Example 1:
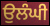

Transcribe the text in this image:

ਉਲੰਘੀ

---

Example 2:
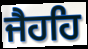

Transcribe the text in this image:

ਜੈਹਹਿ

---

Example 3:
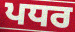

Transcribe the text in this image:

ਪਧਰ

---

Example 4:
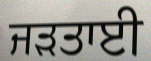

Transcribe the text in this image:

ਜੜਤਾਈ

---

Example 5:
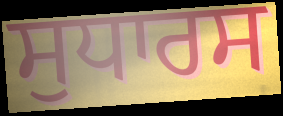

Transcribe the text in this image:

ਸੁਧਾਰਸ